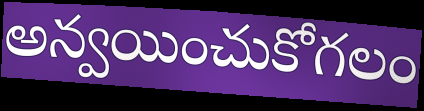
అన్వయించుకోగలం